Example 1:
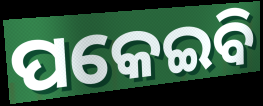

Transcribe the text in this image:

ପକେଇବି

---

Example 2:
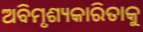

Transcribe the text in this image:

ଅବିମୃଶ୍ୟକାରିତାକୁ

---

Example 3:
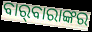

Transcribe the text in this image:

ବାର୍‌ବାରାଙ୍କର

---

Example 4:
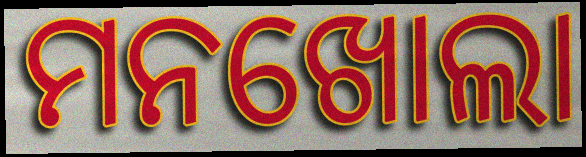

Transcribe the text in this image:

ମନଖୋଲା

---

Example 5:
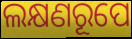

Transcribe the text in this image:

ଲକ୍ଷଣରୂପେ